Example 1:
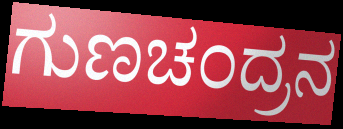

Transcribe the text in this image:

ಗುಣಚಂದ್ರನ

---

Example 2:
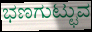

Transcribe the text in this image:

ಭಣಗುಟ್ಟುವ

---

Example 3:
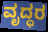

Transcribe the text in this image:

ವೃದ್ಧರ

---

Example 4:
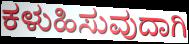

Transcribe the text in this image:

ಕಳುಹಿಸುವುದಾಗಿ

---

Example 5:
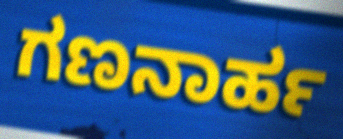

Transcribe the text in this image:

ಗಣನಾರ್ಹ